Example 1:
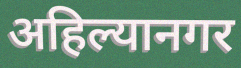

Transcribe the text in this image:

अहिल्यानगर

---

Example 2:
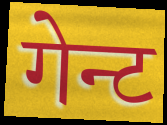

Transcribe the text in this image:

गेन्ट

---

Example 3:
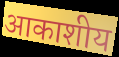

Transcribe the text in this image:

आकाशीय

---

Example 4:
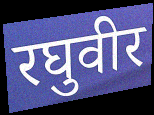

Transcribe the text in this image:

रघुवीर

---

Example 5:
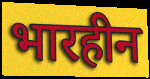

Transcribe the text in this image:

भारहीन